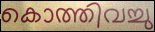
കൊത്തിവച്ചു